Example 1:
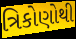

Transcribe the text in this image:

ત્રિકોણોથી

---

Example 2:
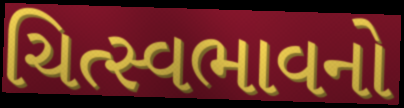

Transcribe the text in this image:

ચિત્સ્વભાવનો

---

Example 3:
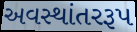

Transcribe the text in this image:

અવસ્થાંતરરૂપ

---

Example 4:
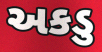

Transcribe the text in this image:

અકડુ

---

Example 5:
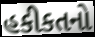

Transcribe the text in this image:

હકીકતનો